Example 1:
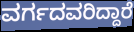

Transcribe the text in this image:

ವರ್ಗದವರಿದ್ದಾರೆ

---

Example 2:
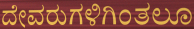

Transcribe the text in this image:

ದೇವರುಗಳಿಗಿಂತಲೂ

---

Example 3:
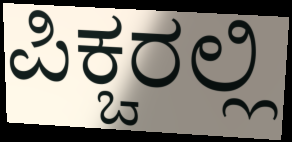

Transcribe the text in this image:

ಪಿಕ್ಚರಲ್ಲಿ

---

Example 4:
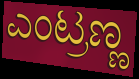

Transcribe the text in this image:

ಎಂಟ್ರಣ್ಣ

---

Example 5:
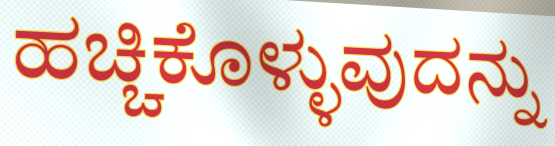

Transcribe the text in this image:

ಹಚ್ಚಿಕೊಳ್ಳುವುದನ್ನು